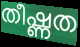
തീഷ്ണത